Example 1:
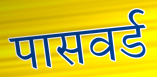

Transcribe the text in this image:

पासवर्ड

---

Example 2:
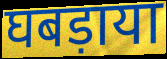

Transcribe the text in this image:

घबड़ाया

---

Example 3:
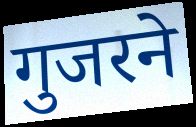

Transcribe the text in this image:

गुजरने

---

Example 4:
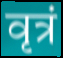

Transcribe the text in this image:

वृत्रं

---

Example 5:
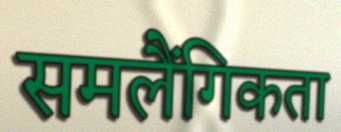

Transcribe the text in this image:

समलैंगिकता